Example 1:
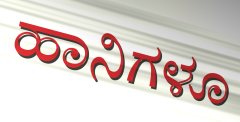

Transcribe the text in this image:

ಹಾನಿಗಳೂ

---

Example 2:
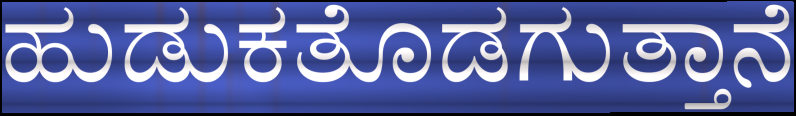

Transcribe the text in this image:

ಹುಡುಕತೊಡಗುತ್ತಾನೆ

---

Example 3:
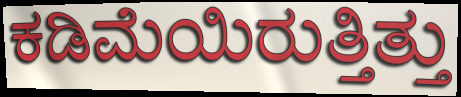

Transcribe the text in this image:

ಕಡಿಮೆಯಿರುತ್ತಿತ್ತು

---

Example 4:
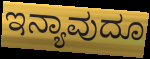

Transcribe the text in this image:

ಇನ್ಯಾವುದೂ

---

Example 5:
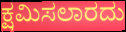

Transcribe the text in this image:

ಕ್ಷಮಿಸಲಾರದು